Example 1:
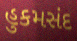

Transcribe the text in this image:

હુકમસંદ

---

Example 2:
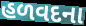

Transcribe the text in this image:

હળવદના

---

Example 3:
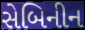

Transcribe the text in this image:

સેબિનીન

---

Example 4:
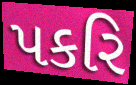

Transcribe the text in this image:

પકરિ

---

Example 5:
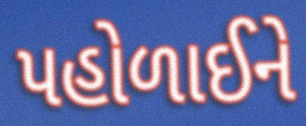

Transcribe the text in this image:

પહોળાઈને